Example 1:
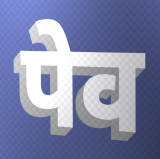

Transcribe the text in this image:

पेव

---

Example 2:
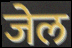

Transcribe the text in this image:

जेल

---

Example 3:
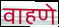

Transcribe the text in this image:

वाहणे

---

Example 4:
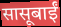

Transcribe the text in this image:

सासूबाईं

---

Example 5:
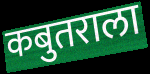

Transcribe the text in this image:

कबुतराला